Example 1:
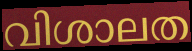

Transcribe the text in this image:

വിശാലത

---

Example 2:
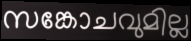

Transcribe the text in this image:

സങ്കോചവുമില്ല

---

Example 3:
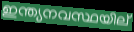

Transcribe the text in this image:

ഇന്ത്യനവസ്ഥയില്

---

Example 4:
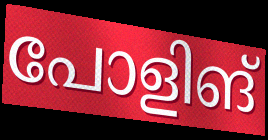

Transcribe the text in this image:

പോളിങ്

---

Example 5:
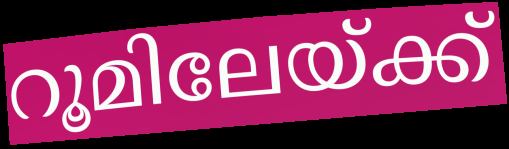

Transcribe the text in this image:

റൂമിലേയ്ക്ക്